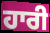
ਹਾਰੀ